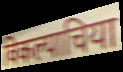
विकल्पाचिया